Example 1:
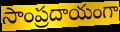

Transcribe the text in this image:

సాంప్రదాయంగా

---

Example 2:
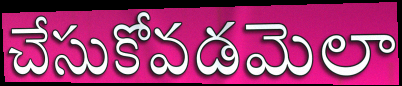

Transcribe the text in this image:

చేసుకోవడమెలా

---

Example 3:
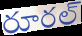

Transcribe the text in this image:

రూరల్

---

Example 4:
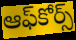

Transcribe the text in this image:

ఆఫ్‌కోర్స్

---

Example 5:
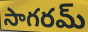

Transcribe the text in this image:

సాగరమ్